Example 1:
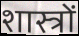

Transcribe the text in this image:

शास्त्रों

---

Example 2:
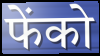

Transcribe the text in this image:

फेंको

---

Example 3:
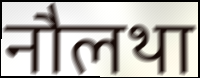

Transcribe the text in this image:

नौलथा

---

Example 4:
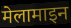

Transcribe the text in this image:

मेलामाइन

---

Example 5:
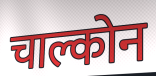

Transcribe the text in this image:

चाल्कोन